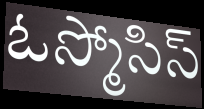
ఓస్మోసిస్